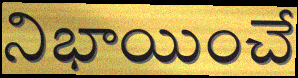
నిభాయించే